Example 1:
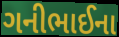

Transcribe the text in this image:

ગનીભાઈના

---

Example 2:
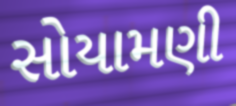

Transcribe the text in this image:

સોયામણી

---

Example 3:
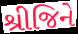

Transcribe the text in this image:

શ્રીજિને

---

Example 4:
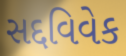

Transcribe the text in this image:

સદ્દવિવેક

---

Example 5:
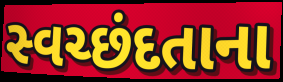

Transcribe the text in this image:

સ્વચ્છંદતાના